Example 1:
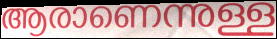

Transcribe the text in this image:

ആരാണെന്നുള്ള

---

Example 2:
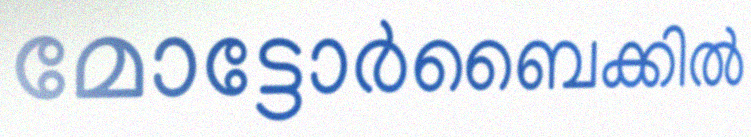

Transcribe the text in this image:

മോട്ടോർബൈക്കിൽ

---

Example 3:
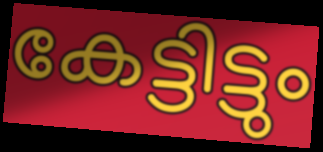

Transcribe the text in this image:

കേട്ടിട്ടും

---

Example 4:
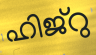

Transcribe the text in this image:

ഹിജ്റു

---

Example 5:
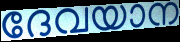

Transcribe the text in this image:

ദേവയാന